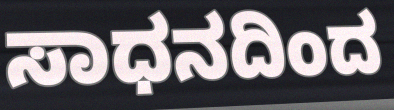
ಸಾಧನದಿಂದ